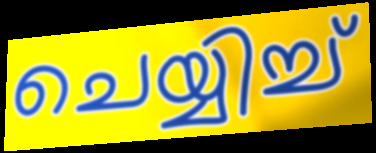
ചെയ്യിച്ച്